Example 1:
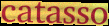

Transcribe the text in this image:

catasso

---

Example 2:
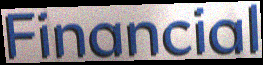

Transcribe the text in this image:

Financial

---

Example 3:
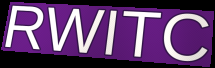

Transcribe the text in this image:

RWITC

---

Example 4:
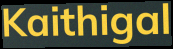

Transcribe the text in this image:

Kaithigal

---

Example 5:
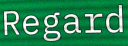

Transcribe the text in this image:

Regard